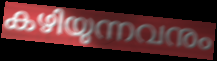
കഴിയുന്നവനും